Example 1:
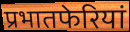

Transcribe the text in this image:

प्रभातफेरियां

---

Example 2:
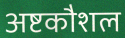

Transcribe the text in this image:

अष्टकौशल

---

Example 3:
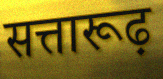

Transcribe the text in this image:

सत्तारूढ़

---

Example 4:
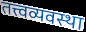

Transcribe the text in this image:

तत्त्वव्यवस्था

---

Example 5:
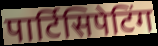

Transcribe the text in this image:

पार्टिसिपेटिंग